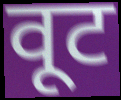
वूट